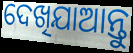
ଦେଖିଯାଆନ୍ତୁ